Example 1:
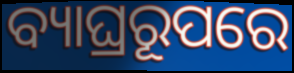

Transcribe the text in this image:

ବ୍ୟାଘ୍ରରୂପରେ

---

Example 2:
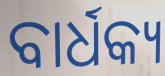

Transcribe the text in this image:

ବାର୍ଧକ୍ୟ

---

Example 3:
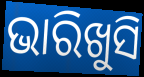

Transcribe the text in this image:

ଭାରିଖୁସି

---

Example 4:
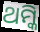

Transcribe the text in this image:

ଥମ୍କି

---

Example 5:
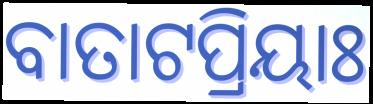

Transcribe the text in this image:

ବାତାଟପ୍ରିୟାଃ